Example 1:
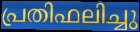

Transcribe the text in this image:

പ്രതിഫലിച്ചു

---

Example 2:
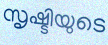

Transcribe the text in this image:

സൃഷ്ടിയുടെ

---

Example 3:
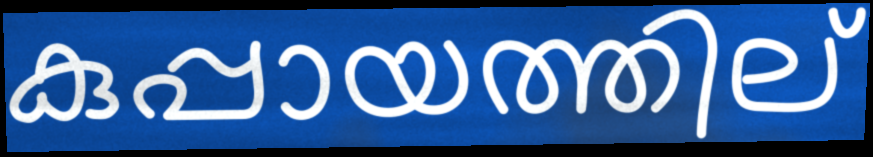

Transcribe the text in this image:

കുപ്പായത്തില്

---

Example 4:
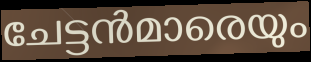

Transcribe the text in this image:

ചേട്ടൻമാരെയും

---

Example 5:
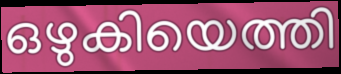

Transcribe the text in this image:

ഒഴുകിയെത്തി